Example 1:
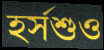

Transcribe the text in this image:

হর্সশুও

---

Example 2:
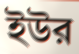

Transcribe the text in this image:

ইউর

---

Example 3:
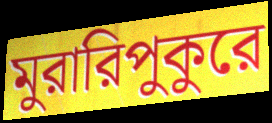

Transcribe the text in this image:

মুরারিপুকুরে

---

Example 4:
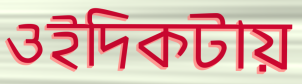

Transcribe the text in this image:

ওইদিকটায়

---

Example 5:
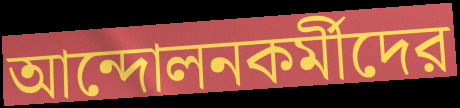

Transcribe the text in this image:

আন্দোলনকর্মীদের